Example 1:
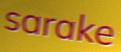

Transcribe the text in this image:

sarake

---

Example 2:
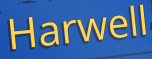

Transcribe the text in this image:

Harwell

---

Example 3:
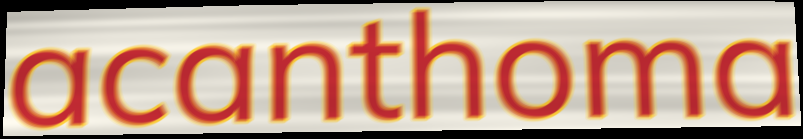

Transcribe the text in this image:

acanthoma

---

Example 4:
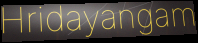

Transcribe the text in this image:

Hridayangam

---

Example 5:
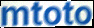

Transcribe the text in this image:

mtoto